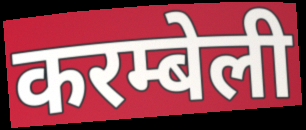
करम्बेली